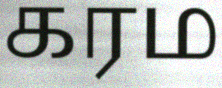
கரம